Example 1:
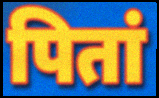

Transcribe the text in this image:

पितां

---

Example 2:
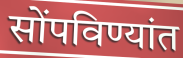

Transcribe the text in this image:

सोंपविण्यांत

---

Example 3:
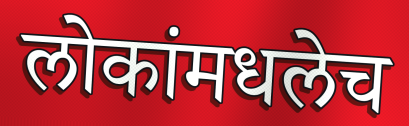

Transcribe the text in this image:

लोकांमधलेच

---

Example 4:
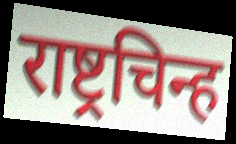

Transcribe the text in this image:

राष्ट्रचिन्ह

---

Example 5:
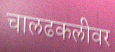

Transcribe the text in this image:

चालढकलीवर